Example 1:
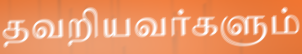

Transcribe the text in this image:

தவறியவர்களும்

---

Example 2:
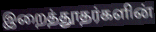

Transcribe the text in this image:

இறைத்தூதர்களின்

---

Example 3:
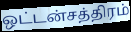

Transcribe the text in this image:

ஒட்டன்சத்திரம்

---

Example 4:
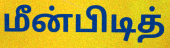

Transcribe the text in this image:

மீன்பிடித்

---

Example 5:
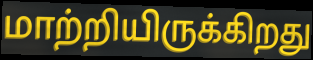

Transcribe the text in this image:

மாற்றியிருக்கிறது